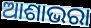
ଆଶାଭରା